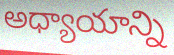
అధ్యాయాన్ని